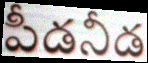
పీడనీడ